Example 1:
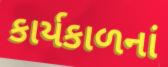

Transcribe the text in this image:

કાર્યકાળનાં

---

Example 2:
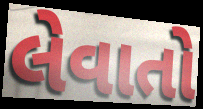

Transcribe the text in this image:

લેવાતો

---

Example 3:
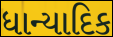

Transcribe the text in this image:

ધાન્યાદિક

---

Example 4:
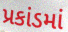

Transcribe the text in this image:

પ્રકાંડમાં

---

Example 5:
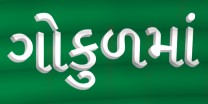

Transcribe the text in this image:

ગોકુળમાં